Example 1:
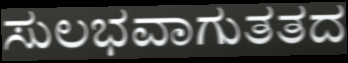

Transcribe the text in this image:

ಸುಲಭವಾಗುತತದ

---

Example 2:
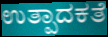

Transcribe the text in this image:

ಉತ್ಪಾದಕತೆ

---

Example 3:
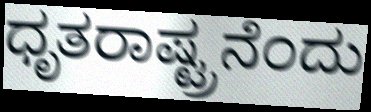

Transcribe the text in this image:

ಧೃತರಾಷ್ಟ್ರನೆಂದು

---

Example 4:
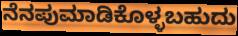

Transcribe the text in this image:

ನೆನಪುಮಾಡಿಕೊಳ್ಳಬಹುದು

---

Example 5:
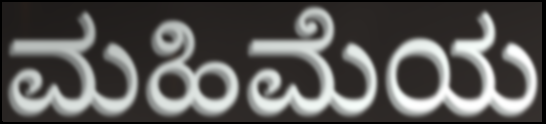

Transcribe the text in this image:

ಮಹಿಮೆಯ